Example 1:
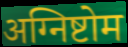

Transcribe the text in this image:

अग्निष्टोम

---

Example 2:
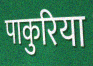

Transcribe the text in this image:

पाकुरिया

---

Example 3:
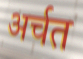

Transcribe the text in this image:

अर्चत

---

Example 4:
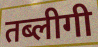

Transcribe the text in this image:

तब्लीगी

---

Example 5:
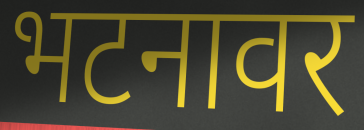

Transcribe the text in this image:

भटनावर